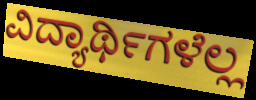
ವಿದ್ಯಾರ್ಥಿಗಳೆಲ್ಲ